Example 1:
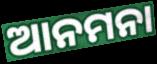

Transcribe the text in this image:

ଆନମନା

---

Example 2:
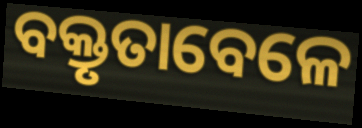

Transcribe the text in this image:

ବକ୍ତୃତାବେଳେ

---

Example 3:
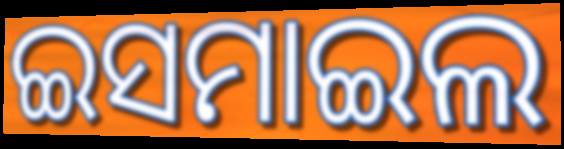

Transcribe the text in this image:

ଇସମାଇଲ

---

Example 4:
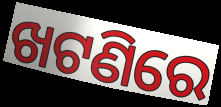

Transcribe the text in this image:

ଖଟଣିରେ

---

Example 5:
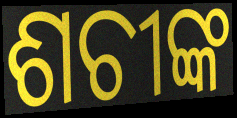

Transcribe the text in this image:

ଶଚୀଙ୍କ